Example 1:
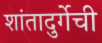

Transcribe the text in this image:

शांतादुर्गेची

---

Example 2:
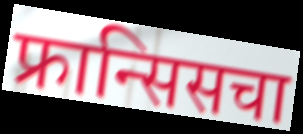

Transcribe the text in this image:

फ्रान्सिसचा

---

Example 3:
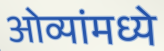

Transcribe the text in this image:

ओव्यांमध्ये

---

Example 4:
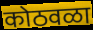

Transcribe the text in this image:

कोठवळा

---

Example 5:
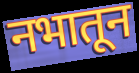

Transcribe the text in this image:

नभातून